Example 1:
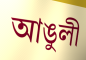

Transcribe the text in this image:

আঙুলী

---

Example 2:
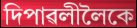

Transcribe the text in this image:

দিপাৱলীলৈকে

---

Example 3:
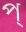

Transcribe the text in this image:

প্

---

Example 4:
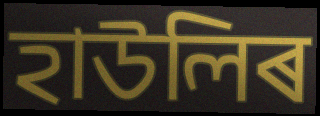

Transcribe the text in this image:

হাউলিৰ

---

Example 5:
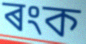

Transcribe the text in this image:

ৰংক